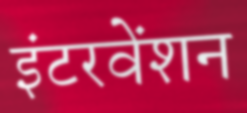
इंटरवेंशन